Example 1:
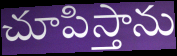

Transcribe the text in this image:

చూపిస్తాను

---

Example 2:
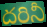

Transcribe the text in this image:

దరినీ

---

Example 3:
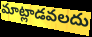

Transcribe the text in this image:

మాట్లాడవలదు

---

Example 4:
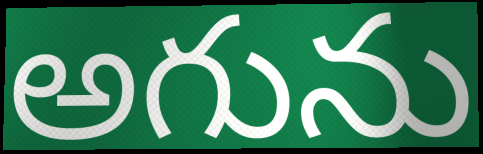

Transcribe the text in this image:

అగును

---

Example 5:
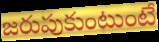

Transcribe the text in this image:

జరుపుకుంటుంటే